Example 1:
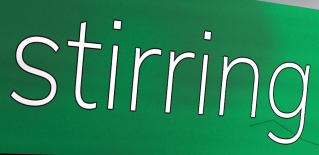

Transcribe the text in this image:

stirring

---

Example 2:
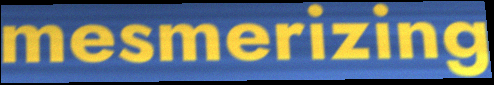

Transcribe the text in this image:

mesmerizing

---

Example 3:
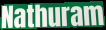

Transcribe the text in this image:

Nathuram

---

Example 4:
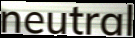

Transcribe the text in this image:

neutral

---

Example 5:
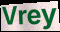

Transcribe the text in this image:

Vrey